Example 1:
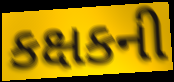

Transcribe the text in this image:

કક્ષકની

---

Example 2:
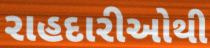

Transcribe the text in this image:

રાહદારીઓથી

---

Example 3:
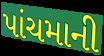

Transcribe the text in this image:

પાંચમાની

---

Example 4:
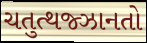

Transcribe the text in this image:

ચતુત્થજ્ઝાનતો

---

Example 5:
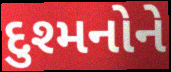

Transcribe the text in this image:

દુશ્મનોને